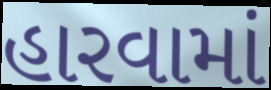
હારવામાં